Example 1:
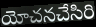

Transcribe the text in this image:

యోచనచేసిరి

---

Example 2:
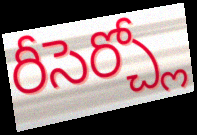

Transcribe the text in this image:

రీసెర్చ్లో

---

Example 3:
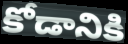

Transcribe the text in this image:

కోడానికి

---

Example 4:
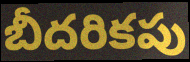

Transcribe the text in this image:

బీదరికపు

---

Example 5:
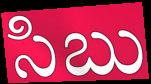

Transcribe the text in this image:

సిబు